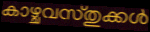
കാഴ്ചവസ്തുക്കൾ